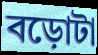
বড়োটা